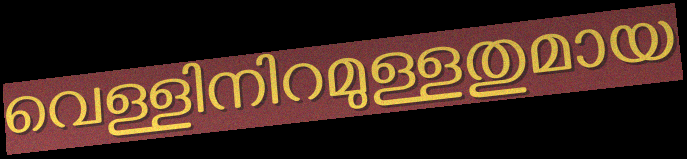
വെള്ളിനിറമുള്ളതുമായ